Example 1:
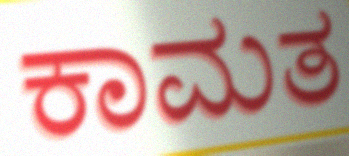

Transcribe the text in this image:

ಕಾಮತ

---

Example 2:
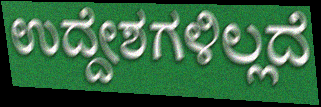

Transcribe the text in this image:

ಉದ್ದೇಶಗಳಿಲ್ಲದೆ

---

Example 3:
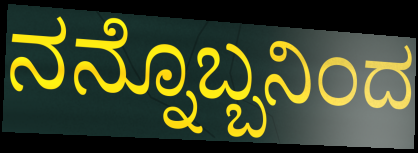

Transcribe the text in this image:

ನನ್ನೊಬ್ಬನಿಂದ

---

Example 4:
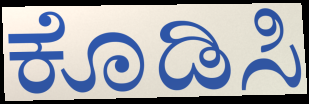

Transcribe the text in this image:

ಕೊಡಿಸಿ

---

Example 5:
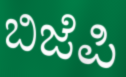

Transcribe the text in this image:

ಬಿಜೆಪಿ